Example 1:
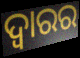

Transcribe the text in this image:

ଦ୍ୱାରର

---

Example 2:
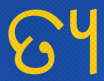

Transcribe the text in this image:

ତ୍ୟ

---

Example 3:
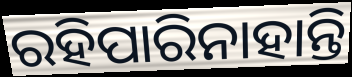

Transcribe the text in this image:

ରହିପାରିନାହାନ୍ତି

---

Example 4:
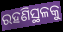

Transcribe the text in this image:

ରହଣିସ୍ଥଳକୁ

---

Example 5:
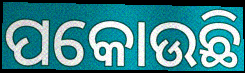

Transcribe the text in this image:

ପକୋଉଛି